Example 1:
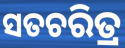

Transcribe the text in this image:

ସତଚରିତ୍ର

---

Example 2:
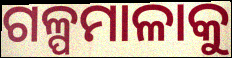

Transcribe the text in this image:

ଗଳ୍ପମାଳାକୁ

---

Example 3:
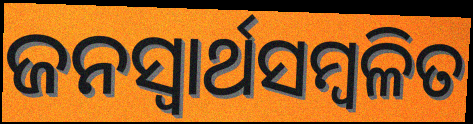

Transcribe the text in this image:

ଜନସ୍ବାର୍ଥସମ୍ବଳିତ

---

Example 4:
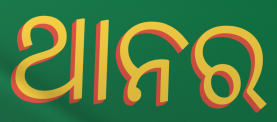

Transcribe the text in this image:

ଥାନର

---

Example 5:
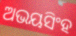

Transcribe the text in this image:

ଅଭୟସିଂହ